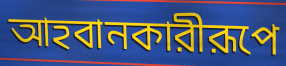
আহবানকারীরূপে